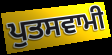
ਪੁਤਸਵਾਮੀ